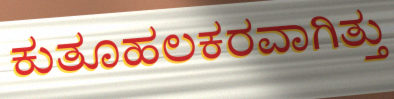
ಕುತೂಹಲಕರವಾಗಿತ್ತು